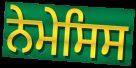
ਨੇਮੇਸਿਸ